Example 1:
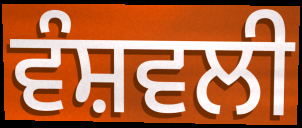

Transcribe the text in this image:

ਵੰਸ਼ਵਲੀ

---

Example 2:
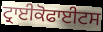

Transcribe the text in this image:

ਟ੍ਰਾਈਕੋਫਾਈਟਸ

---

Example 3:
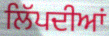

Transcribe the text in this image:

ਲਿੱਪਦੀਆਂ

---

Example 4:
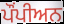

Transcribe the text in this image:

ਪੌਂਪੀਅਨ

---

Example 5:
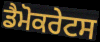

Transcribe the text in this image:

ਡੈਮੋਕਰੇਟਸ